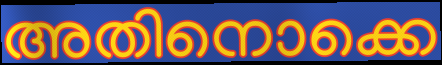
അതിനൊക്കെ